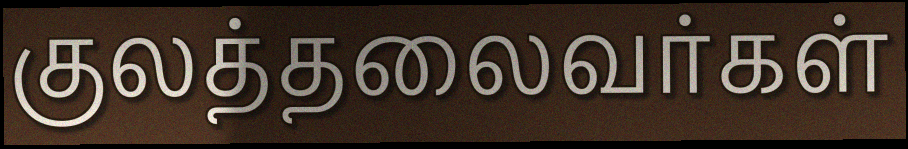
குலத்தலைவர்கள்